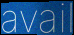
avail